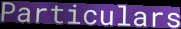
Particulars